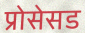
प्रोसेसड